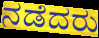
ನಡೆದರು